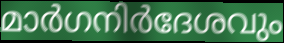
മാർഗനിർദേശവും